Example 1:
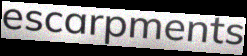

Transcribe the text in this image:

escarpments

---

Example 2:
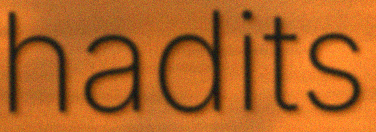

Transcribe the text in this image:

hadits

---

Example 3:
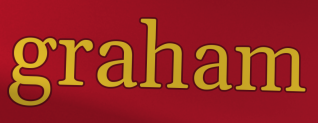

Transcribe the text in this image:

graham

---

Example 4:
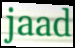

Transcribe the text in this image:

jaad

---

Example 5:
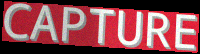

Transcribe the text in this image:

CAPTURE